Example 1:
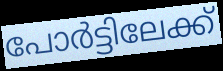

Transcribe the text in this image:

പോർട്ടിലേക്ക്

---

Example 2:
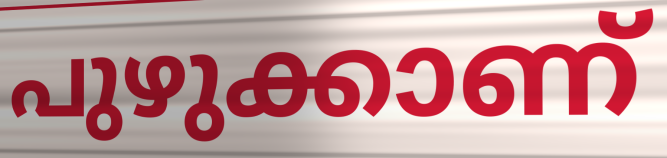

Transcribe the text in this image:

പുഴുക്കാണ്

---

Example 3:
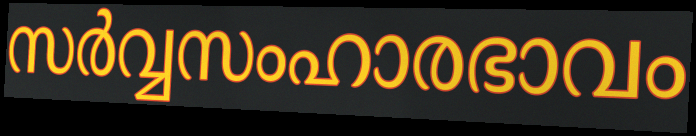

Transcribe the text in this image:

സർവ്വസംഹാരഭാവം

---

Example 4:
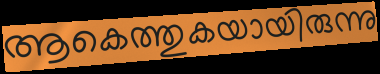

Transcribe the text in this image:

ആകെത്തുകയായിരുന്നു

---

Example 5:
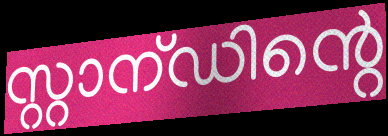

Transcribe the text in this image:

സ്റ്റാന്ഡിന്റെ